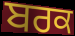
ਬਰਕ